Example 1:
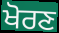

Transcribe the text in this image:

ਖੋਰਣ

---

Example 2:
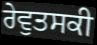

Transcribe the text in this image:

ਰੇਵੁਤਸਕੀ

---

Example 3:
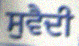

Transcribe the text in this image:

ਸੁਵੈਦੀ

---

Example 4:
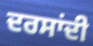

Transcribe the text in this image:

ਦਰਸਾਂਦੀ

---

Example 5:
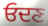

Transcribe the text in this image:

ਓਦਣ